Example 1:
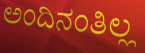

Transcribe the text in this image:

ಅಂದಿನಂತಿಲ್ಲ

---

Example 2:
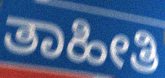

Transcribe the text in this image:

ತಾಹೀತಿ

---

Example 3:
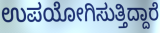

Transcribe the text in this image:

ಉಪಯೋಗಿಸುತ್ತಿದ್ದಾರೆ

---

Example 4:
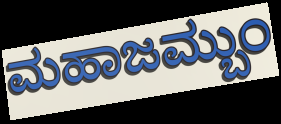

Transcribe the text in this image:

ಮಹಾಜಮ್ಬುಂ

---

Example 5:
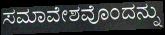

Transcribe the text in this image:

ಸಮಾವೇಶವೊಂದನ್ನು